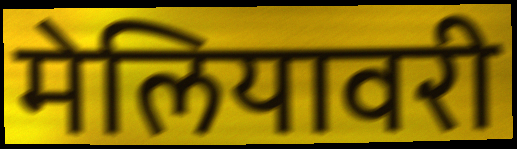
मेलियावरी